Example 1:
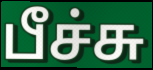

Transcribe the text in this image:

பீச்சு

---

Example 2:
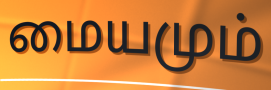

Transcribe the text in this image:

மையமும்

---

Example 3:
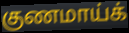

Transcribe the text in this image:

குணமாய்க்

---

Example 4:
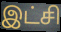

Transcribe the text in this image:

இட்சி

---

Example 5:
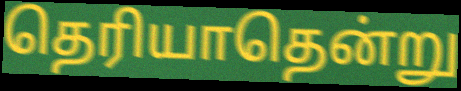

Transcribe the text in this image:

தெரியாதென்று